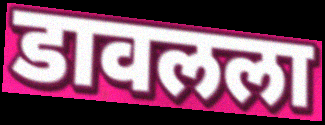
डावलला